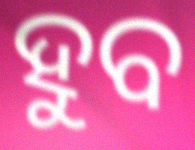
ହୁବ